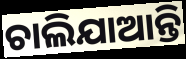
ଚାଲିଯାଆନ୍ତି